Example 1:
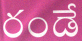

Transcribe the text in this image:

రండే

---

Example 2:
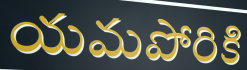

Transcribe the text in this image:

యమపోరికి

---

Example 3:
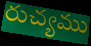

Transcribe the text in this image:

రుచ్యము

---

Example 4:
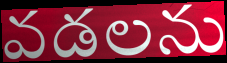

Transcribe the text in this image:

వడలను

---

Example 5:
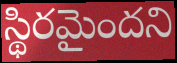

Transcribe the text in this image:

స్థిరమైందని